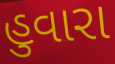
હુવારા